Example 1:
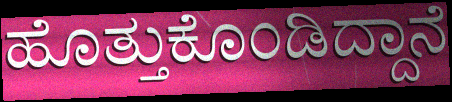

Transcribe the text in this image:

ಹೊತ್ತುಕೊಂಡಿದ್ದಾನೆ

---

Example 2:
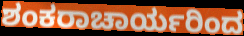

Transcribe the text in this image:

ಶಂಕರಾಚಾರ್ಯರಿಂದ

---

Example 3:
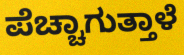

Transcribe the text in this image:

ಪೆಚ್ಚಾಗುತ್ತಾಳೆ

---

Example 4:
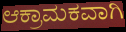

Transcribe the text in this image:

ಆಕ್ರಾಮಕವಾಗಿ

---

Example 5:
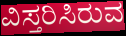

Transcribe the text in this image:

ವಿಸ್ತರಿಸಿರುವ